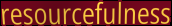
resourcefulness